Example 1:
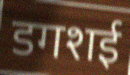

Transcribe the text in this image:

डगशई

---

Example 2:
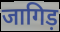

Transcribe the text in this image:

जागिड़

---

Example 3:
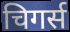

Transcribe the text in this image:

चिगर्स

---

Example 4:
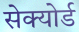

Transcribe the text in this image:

सेक्योर्ड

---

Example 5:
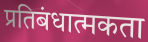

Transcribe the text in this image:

प्रतिबंधात्मकता